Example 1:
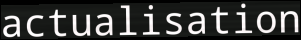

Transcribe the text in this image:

actualisation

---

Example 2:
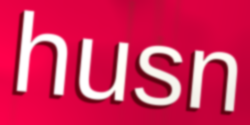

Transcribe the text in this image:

husn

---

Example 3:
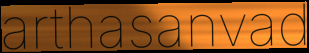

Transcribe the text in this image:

arthasanvad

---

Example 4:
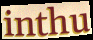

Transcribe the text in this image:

inthu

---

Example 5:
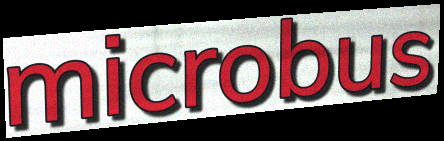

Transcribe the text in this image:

microbus